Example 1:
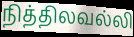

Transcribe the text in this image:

நித்திலவல்லி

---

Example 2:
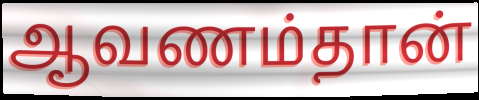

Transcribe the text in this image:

ஆவணம்தான்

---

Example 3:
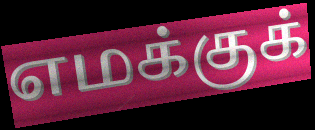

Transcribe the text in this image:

எமக்குக்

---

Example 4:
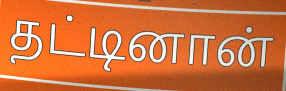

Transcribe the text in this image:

தட்டினான்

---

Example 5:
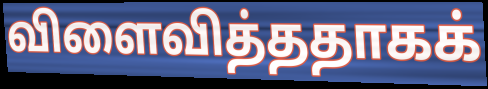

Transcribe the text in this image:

விளைவித்ததாகக்